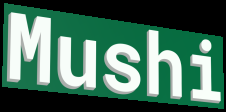
Mushi